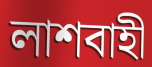
লাশবাহী